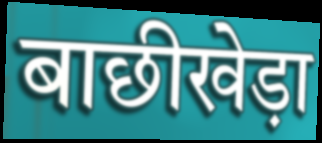
बाछीखेड़ा